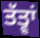
ਤੱਤ੍ਵਾਂ